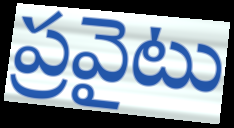
ప్రవైటు